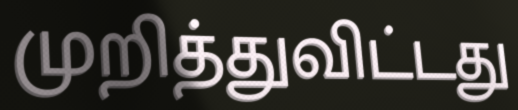
முறித்துவிட்டது